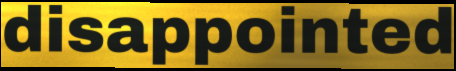
disappointed